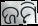
ଜମି